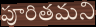
పూరితమని